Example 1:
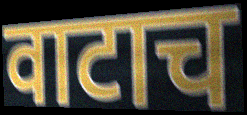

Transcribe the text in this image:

वाटाच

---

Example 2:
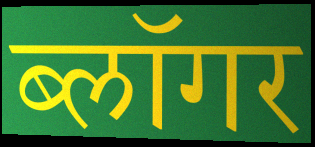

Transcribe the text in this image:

ब्लॉगर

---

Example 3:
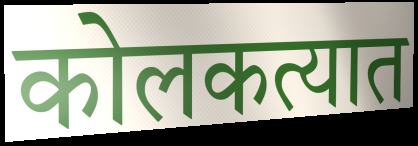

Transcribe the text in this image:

कोलकत्यात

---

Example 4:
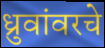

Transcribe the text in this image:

ध्रुवांवरचे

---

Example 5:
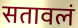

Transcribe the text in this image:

सतावलं